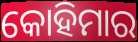
କୋହିମାର